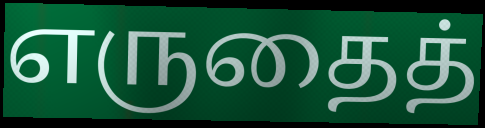
எருதைத்